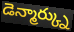
డెన్మార్క్ను